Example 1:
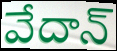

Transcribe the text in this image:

వేదాన్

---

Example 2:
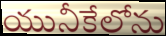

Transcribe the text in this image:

యునీకేలోను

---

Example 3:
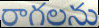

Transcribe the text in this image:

రాగలను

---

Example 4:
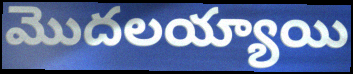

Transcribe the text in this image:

మొదలయ్యాయి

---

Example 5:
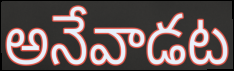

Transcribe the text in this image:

అనేవాడట